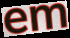
em